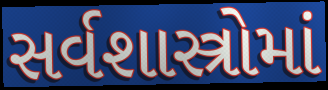
સર્વશાસ્ત્રોમાં